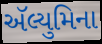
ઍલ્યુમિના